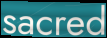
sacred